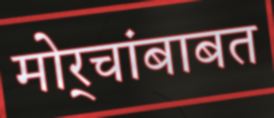
मोर्चांबाबत